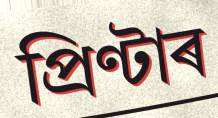
প্ৰিণ্টাৰ